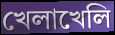
খেলাখেলি